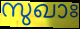
സുഖാഃ